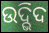
ଉଦ୍ଭିଦ